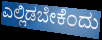
ಎಲ್ಲಿಡಬೇಕೆಂದು